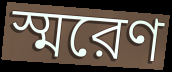
স্মরেণ